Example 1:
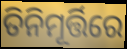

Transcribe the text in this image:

ତିନିମୂର୍ତ୍ତିରେ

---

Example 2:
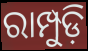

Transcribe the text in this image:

ରାମ୍ପୁଡ଼ି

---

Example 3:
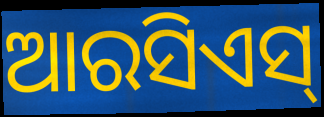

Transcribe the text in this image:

ଆରସିଏସ୍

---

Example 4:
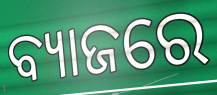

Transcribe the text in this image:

ବ୍ୟାଜରେ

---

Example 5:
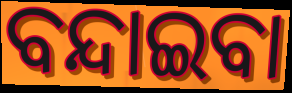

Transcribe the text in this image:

ବନ୍ଦାଇବା